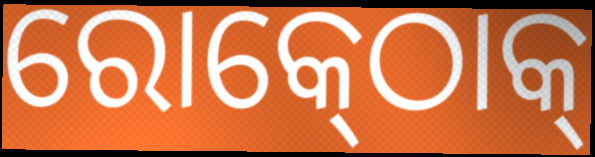
ରୋକ୍‍ଠୋକ୍